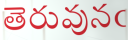
తెరువునఁ